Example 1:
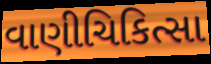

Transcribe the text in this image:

વાણીચિકિત્સા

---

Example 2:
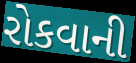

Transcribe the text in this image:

રોકવાની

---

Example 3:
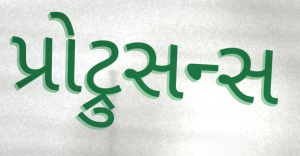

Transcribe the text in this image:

પ્રોટ્રુસન્સ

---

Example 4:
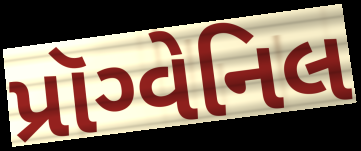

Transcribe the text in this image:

પ્રૉગ્વેનિલ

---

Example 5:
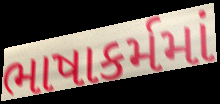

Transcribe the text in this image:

ભાષાકર્મમાં